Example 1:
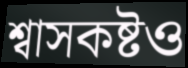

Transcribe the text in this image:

শ্বাসকষ্টও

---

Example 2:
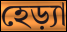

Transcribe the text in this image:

হেড়্যা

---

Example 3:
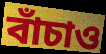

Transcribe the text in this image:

বাঁচাও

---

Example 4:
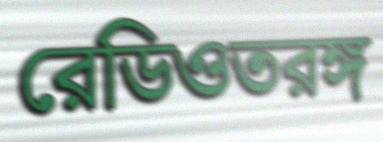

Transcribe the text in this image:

রেডিওতরঙ্গ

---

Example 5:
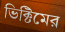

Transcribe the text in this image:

ভিক্টিমের